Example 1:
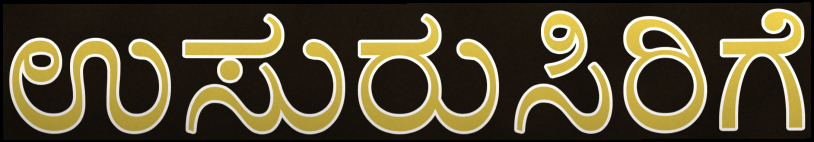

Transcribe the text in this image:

ಉಸುರುಸಿರಿಗೆ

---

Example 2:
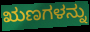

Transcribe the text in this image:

ಋಣಗಳನ್ನು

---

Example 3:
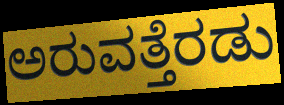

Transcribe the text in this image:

ಅರುವತ್ತೆರಡು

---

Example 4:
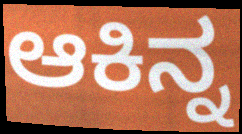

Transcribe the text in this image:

ಆಕಿನ್ನ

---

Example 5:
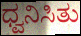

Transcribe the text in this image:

ಧ್ವನಿಸಿತು